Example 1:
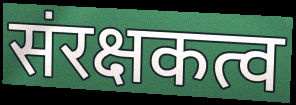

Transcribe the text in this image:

संरक्षकत्व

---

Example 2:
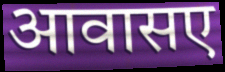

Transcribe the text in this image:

आवासए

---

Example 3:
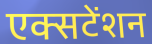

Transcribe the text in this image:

एक्सटेंशन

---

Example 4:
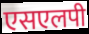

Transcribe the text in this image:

एसएलपी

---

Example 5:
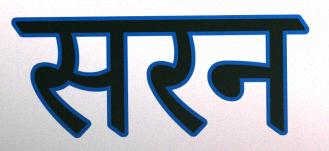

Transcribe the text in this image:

सरन